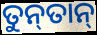
ତୁନ୍‍ତାନ୍